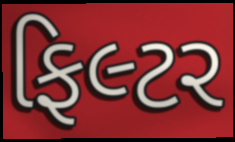
ફિલ્ટર